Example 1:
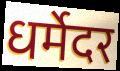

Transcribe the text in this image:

धर्मेदर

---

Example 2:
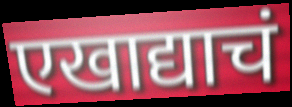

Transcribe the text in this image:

एखाद्याचं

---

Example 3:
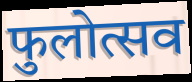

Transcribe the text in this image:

फुलोत्सव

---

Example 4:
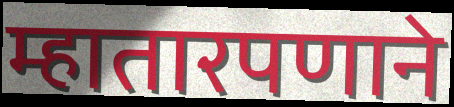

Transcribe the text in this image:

म्हातारपणाने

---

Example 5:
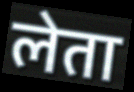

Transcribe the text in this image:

लेता